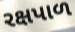
રક્ષપાળ